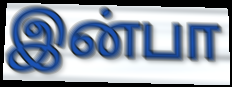
இன்பா